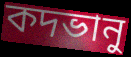
কদভানু